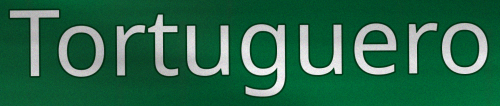
Tortuguero